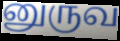
னுருவ